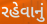
રહેવાનું